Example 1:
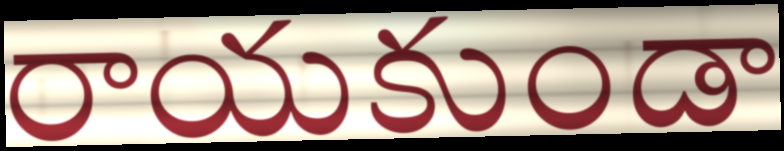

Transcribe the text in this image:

రాయకుండా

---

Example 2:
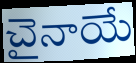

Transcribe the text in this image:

చైనాయే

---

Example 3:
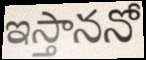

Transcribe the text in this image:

ఇస్తాననో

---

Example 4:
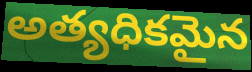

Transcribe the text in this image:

అత్యధికమైన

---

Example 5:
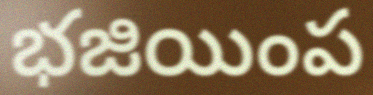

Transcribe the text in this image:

భజియింప